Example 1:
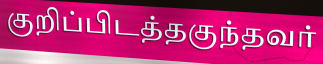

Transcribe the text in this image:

குறிப்பிடத்தகுந்தவர்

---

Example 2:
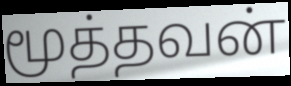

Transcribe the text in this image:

மூத்தவன்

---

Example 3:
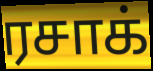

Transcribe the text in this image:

ரசாக்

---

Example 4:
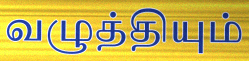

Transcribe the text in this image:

வழுத்தியும்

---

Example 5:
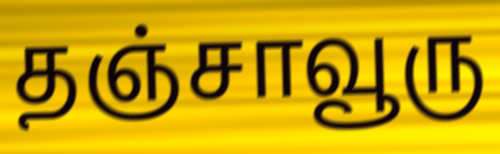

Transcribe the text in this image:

தஞ்சாவூரு